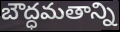
బౌద్ధమతాన్ని